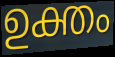
ഉക്തം